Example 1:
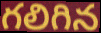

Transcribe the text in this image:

గలిగిన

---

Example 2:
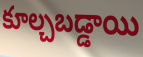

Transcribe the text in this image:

కూల్చబడ్డాయి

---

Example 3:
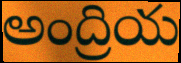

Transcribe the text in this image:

అంద్రియ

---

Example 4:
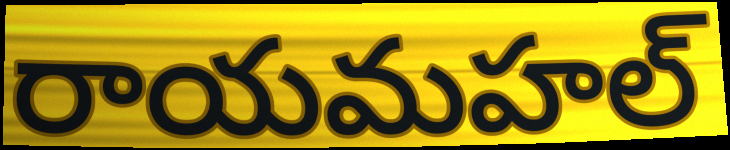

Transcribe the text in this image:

రాయమహల్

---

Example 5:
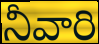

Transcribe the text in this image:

నీవారి